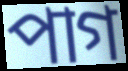
পাগ